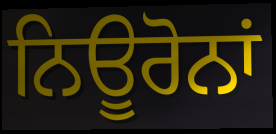
ਨਿਊਰੋਨਾਂ